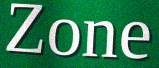
Zone